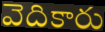
వెదికారు